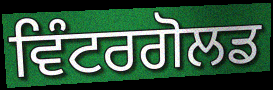
ਵਿੰਟਰਗੋਲਡ